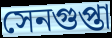
সেনগুপ্তা